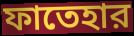
ফাতেহার